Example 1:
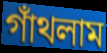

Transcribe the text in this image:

গাঁথলাম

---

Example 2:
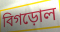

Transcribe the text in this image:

বিগড়োল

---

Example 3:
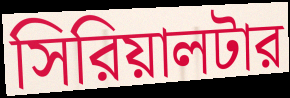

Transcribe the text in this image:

সিরিয়ালটার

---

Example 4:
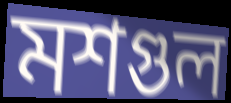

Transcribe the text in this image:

মশগুল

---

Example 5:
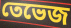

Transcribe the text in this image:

তেভেজ